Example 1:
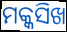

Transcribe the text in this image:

ମକ୍କସିଖ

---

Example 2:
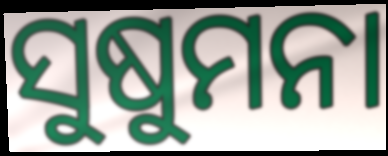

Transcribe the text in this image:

ସୁଷୁମନା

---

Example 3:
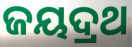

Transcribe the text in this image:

ଜୟଦ୍ରଥ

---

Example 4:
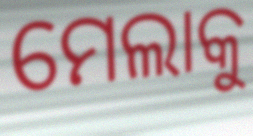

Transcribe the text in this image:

ମେଲାକୁ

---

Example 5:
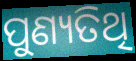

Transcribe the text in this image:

ପୁଣ୍ୟତିଥି